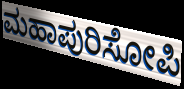
ಮಹಾಪುರಿಸೋಪಿ